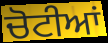
ਚੋਟੀਆਂ